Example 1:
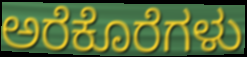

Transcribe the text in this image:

ಅರೆಕೊರೆಗಳು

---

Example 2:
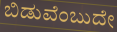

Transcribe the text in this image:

ಬಿಡುವೆಂಬುದೇ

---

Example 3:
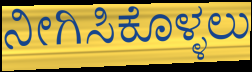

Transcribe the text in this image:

ನೀಗಿಸಿಕೊಳ್ಳಲು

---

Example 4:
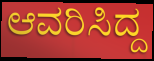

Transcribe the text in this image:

ಆವರಿಸಿದ್ದ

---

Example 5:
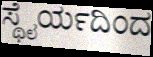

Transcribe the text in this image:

ಸ್ಥೈರ್ಯದಿಂದ